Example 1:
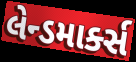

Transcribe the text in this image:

લેન્ડમાર્ક્સ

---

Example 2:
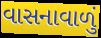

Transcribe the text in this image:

વાસનાવાળું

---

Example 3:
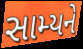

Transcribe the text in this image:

સામ્યને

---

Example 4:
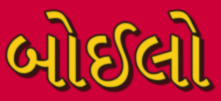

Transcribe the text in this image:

બોઈલો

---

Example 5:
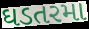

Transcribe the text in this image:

ઘડતરમા